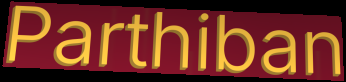
Parthiban